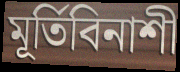
মূর্তিবিনাশী